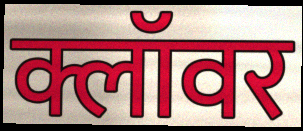
क्लॉवर